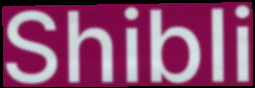
Shibli